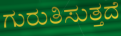
ಗುರುತಿಸುತ್ತದೆ